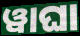
ୱାଘା